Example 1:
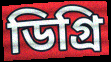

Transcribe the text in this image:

ডিগ্রি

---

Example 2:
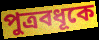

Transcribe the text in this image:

পুত্রবধূকে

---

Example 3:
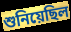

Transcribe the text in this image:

শুনিয়েছিল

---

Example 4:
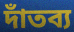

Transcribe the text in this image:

দাঁতব্য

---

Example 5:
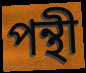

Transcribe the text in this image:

পন্থী